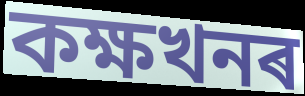
কক্ষখনৰ